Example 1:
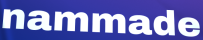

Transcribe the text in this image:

nammade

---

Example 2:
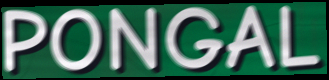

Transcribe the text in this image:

PONGAL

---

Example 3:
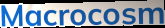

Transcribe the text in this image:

Macrocosm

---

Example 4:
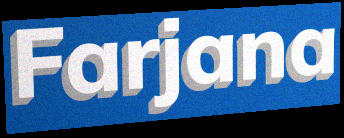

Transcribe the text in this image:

Farjana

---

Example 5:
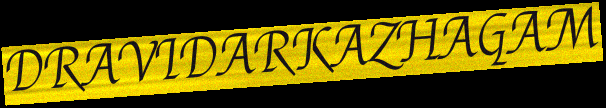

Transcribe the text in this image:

DRAVIDARKAZHAGAM